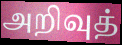
அறிவுத்